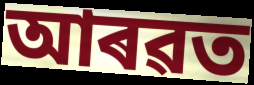
আৰৱত